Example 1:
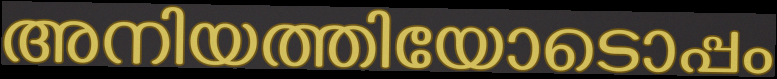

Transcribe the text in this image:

അനിയത്തിയോടൊപ്പം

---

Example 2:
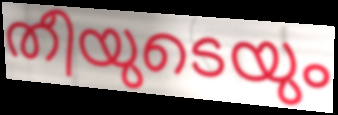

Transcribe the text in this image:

തീയുടെയും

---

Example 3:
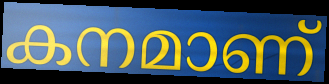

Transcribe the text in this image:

കനമാണ്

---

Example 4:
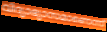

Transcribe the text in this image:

വിദ്യാഭ്യാസമാണെന്ന്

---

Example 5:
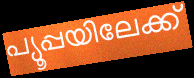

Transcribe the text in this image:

പ്യൂപ്പയിലേക്ക്